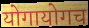
योगायोगच